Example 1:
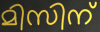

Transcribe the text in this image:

മിസിന്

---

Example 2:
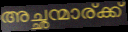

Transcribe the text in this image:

അച്ഛന്മാര്ക്ക്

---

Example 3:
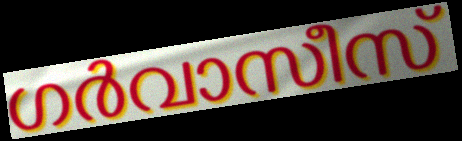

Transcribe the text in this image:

ഗർവാസീസ്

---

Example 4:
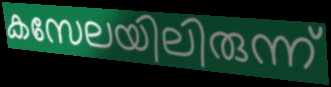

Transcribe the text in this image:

കസേലയിലിരുന്ന്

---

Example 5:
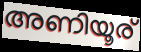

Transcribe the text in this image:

അണിയൂര്